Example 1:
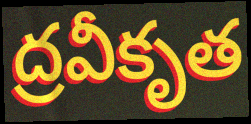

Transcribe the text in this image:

ద్రవీకృత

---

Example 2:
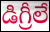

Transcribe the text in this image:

డిగ్రీలే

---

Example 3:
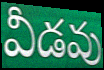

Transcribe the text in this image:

వీడవు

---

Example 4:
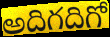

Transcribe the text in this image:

అదిగదిగో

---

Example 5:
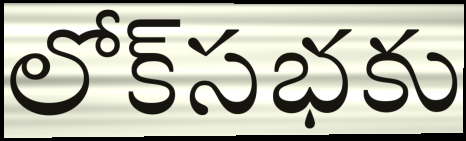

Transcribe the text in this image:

లోక్‌సభకు